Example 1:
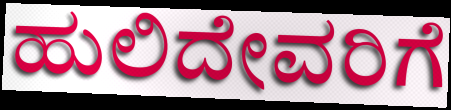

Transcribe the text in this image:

ಹುಲಿದೇವರಿಗೆ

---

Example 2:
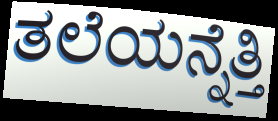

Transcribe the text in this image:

ತಲೆಯನ್ನೆತ್ತಿ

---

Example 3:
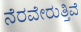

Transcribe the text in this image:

ನೆರವೇರುತ್ತಿವೆ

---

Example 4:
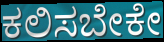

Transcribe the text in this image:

ಕಲಿಸಬೇಕೇ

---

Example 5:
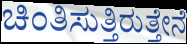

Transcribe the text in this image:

ಚಿಂತಿಸುತ್ತಿರುತ್ತೇನೆ